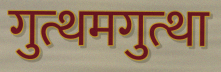
गुत्थमगुत्था